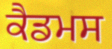
ਕੈਡਮਸ